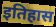
इतिहास